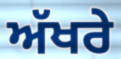
ਅੱਖਰੇ